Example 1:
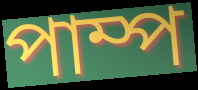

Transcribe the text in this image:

পাম্প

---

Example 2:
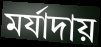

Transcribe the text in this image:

মর্যাদায়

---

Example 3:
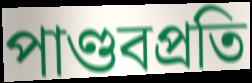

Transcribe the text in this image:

পাণ্ডবপ্রতি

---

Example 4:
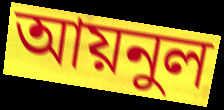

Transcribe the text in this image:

আয়নুল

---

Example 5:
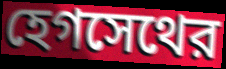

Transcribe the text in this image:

হেগসেথের